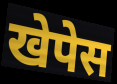
खेपेस